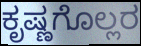
ಕೃಷ್ಣಗೊಲ್ಲರ